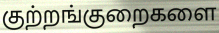
குற்றங்குறைகளை